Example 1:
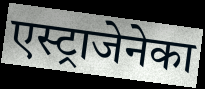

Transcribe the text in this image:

एस्‍ट्राजेनेका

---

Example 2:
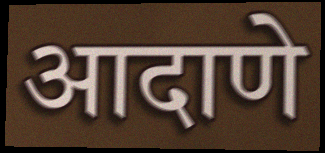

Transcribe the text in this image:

आदाणे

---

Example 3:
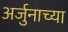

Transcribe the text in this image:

अर्जुनाच्या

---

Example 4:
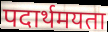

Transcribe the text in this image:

पदार्थमयता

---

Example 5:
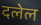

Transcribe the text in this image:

दलेल